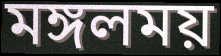
মঙ্গলময়